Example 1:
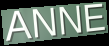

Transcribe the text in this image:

ANNE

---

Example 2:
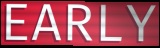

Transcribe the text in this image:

EARLY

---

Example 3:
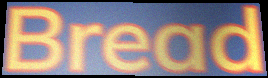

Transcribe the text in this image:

Bread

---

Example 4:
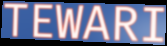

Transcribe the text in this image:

TEWARI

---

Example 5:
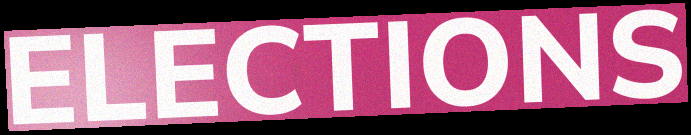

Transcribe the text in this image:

ELECTIONS